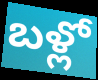
బళ్లో